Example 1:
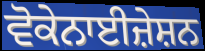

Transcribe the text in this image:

ਵੋਕੇਨਾਈਜ਼ੇਸ਼ਨ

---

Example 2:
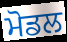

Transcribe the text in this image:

ਮੋਡਲ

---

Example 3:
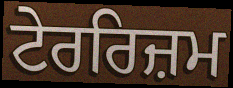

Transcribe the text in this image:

ਟੇਰਰਿਜ਼ਮ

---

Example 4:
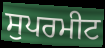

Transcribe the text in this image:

ਸੁਪਰਮੀਟ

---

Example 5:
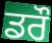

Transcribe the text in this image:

ਡਰੌ